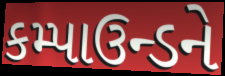
કમ્પાઉન્ડને